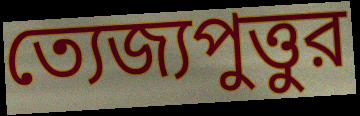
ত্যেজ্যপুত্তুর